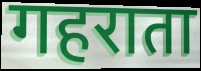
गहराता